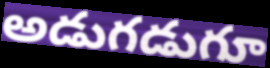
అడుగడుగూ